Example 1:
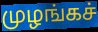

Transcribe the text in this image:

முழங்கச்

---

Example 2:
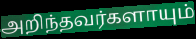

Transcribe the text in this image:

அறிந்தவர்களாயும்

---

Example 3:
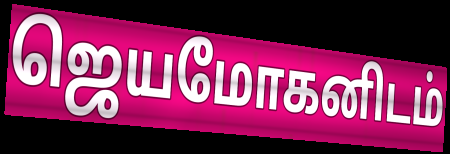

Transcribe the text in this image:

ஜெயமோகனிடம்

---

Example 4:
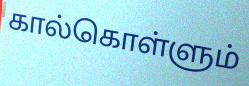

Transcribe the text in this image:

கால்கொள்ளும்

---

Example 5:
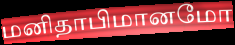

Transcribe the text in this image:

மனிதாபிமானமோ